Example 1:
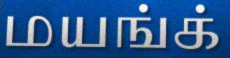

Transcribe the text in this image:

மயங்க்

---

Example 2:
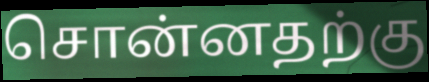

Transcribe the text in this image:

சொன்னதற்கு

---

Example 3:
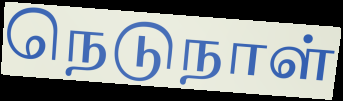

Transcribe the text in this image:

நெடுநாள்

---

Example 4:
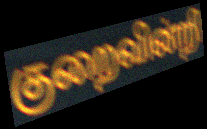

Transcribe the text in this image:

குறைவின்றி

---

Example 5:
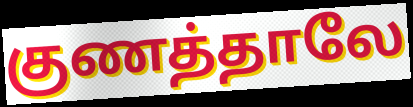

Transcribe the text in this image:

குணத்தாலே